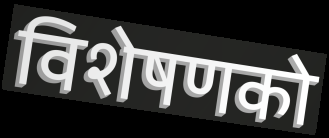
विशेषणको